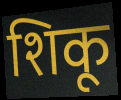
शिकू